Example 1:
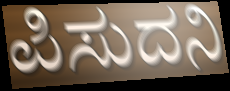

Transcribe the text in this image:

ಪಿಸುದನಿ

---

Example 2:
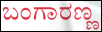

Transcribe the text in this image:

ಬಂಗಾರಣ್ಣ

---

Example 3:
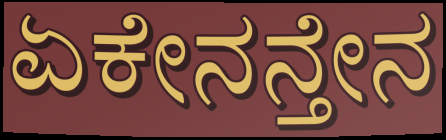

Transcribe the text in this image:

ಏಕೇನನ್ತೇನ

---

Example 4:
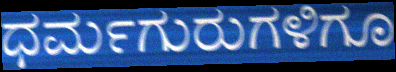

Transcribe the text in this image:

ಧರ್ಮಗುರುಗಳಿಗೂ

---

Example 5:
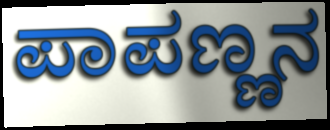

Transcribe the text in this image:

ಪಾಪಣ್ಣನ